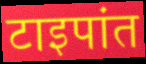
टाइपांत